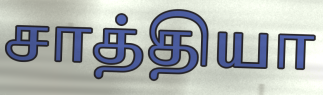
சாத்தியா